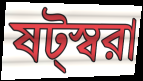
ষট্স্বরা